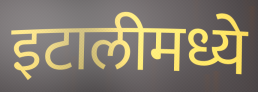
इटालीमध्ये